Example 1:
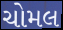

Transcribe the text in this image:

ચોમલ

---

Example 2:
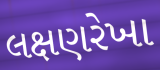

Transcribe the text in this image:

લક્ષણરેખા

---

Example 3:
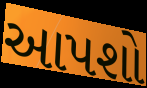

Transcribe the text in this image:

આપશો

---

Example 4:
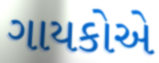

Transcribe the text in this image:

ગાયકોએ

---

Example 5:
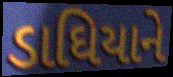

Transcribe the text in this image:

ડાઘિયાને